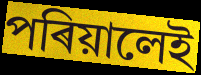
পৰিয়ালেই